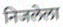
निजलेला